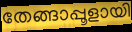
തേങ്ങാപ്പൂളായി